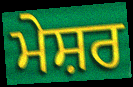
ਮੇਸ਼ਰ